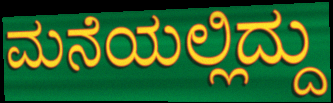
ಮನೆಯಲ್ಲಿದ್ದು